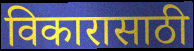
विकारासाठी